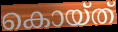
കൊയ്ത്